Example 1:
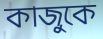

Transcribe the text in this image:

কাজুকে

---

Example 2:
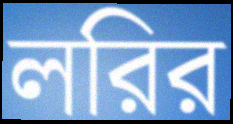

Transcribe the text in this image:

লরির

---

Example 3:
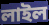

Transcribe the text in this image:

লাইল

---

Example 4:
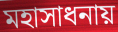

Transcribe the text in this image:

মহাসাধনায়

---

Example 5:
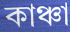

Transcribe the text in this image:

কাঞ্চা